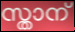
സ്താന്